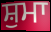
ਸ਼ੁਮਾ